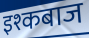
इश्कबाज